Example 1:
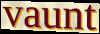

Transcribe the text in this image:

vaunt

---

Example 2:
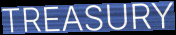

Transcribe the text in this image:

TREASURY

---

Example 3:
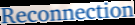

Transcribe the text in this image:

Reconnection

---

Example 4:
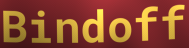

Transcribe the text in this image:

Bindoff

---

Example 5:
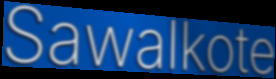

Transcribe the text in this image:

Sawalkote